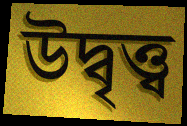
উদ্বৃত্ত্ব